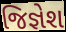
જિજ્ઞેશ